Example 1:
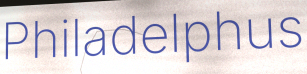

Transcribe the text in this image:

Philadelphus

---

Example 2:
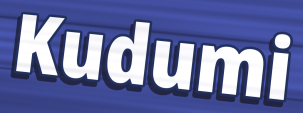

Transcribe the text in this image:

Kudumi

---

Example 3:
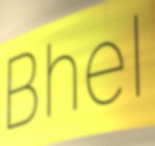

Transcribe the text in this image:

Bhel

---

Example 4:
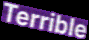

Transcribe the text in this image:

Terrible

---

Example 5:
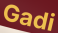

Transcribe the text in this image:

Gadi